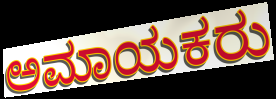
ಅಮಾಯಕರು